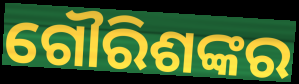
ଗୌରିଶଙ୍କର